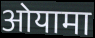
ओयामा